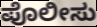
ಪೊಲೀಸು